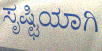
ಸೃಷ್ಟಿಯಾಗಿ